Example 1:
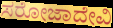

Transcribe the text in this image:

ಸರೋಜಾದೇವಿ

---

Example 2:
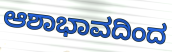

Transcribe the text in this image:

ಆಶಾಭಾವದಿಂದ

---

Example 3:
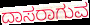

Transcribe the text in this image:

ದಾಸರಾಗುವ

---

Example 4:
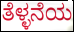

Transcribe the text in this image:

ತೆಳ್ಳನೆಯ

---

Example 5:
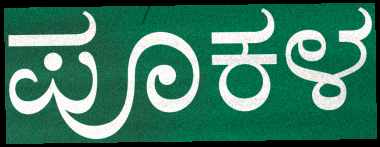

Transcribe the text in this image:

ಪೂಕಳ